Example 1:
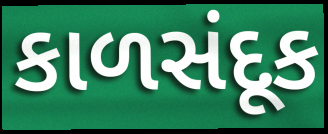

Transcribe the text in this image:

કાળસંદૂક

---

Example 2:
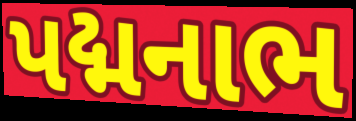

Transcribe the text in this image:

પદ્મનાભ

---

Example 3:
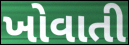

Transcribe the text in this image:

ખોવાતી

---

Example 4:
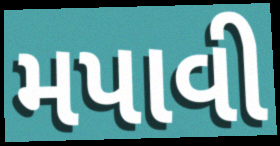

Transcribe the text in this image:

મપાવી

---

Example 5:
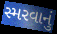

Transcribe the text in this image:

સ્મરવાનું